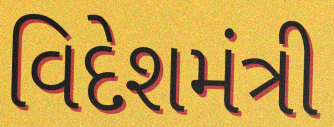
વિદેશમંત્રી